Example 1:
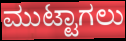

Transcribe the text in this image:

ಮುಟ್ಟಾಗಲು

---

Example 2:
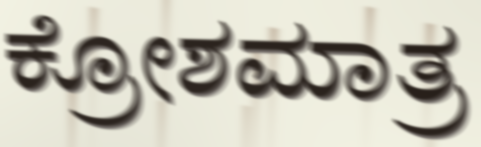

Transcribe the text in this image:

ಕ್ರೋಶಮಾತ್ರ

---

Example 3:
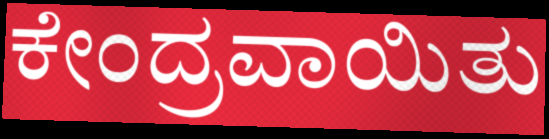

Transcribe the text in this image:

ಕೇಂದ್ರವಾಯಿತು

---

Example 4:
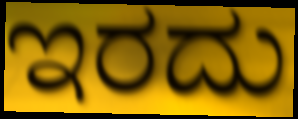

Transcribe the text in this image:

ಇರದು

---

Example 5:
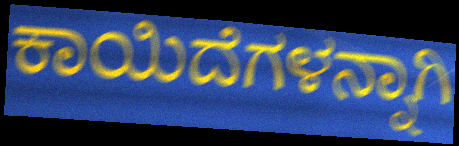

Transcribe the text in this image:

ಕಾಯಿದೆಗಳನ್ನಾಗಿ